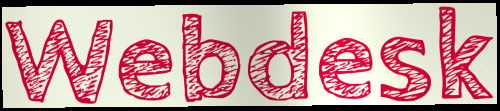
Webdesk